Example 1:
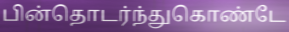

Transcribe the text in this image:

பின்தொடர்ந்துகொண்டே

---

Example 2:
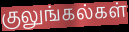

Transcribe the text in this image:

குலுங்கல்கள்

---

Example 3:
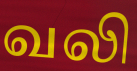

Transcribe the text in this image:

வலி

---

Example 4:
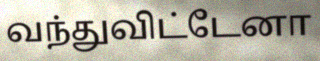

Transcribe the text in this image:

வந்துவிட்டேனா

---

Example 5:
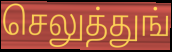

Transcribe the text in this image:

செலுத்துங்